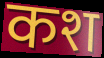
कश